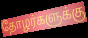
தோழர்களுக்கு